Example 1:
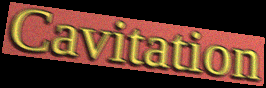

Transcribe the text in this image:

Cavitation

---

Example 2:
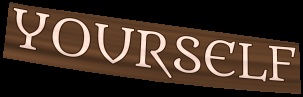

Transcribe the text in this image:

YOURSELF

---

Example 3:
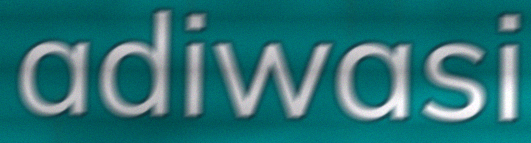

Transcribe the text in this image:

adiwasi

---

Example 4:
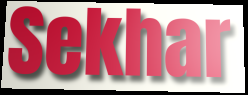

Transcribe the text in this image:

Sekhar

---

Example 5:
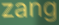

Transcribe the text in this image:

zang